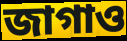
জাগাও